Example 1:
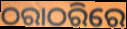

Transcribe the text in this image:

ଠରାଠରିରେ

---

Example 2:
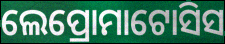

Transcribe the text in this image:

ଲେପ୍ରୋମାଟୋସିସ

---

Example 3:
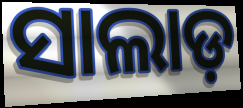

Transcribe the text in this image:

ସାଲାଡ଼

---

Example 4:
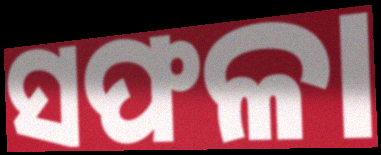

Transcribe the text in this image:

ସଫଳା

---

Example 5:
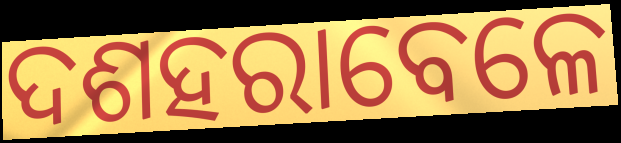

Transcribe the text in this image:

ଦଶହରାବେଳେ